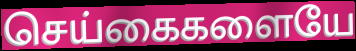
செய்கைகளையே